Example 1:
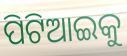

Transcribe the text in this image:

ପିଟିଆଇକୁ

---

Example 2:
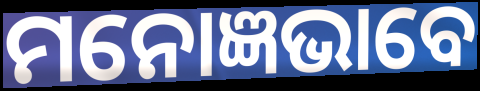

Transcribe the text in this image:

ମନୋଜ୍ଞଭାବେ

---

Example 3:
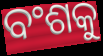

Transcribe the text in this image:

ବଂଶକୁ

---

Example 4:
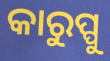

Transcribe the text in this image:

କାରୁପ୍ପୁ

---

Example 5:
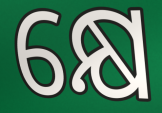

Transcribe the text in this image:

କ୍ଷେ